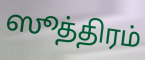
ஸூத்திரம்